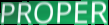
PROPER